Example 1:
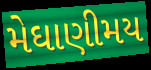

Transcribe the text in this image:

મેઘાણીમય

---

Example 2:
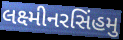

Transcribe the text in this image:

લક્ષ્મીનરસિંહમુ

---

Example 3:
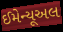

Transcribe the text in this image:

ઈમેન્યૂઅલ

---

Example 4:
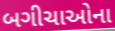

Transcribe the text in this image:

બગીચાઓના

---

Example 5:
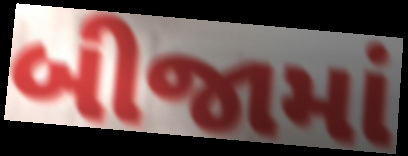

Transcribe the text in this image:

બીજામાં